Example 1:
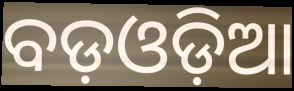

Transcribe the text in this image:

ବଡ଼ଓଡ଼ିଆ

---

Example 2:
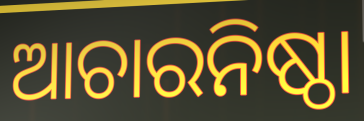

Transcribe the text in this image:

ଆଚାରନିଷ୍ଠା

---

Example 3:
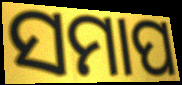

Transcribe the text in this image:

ସମାପ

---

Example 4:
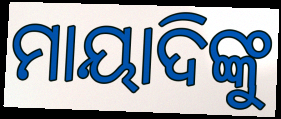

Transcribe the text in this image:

ମାୟାଦିଙ୍କୁ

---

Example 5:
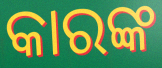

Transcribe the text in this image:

କାରଙ୍କ